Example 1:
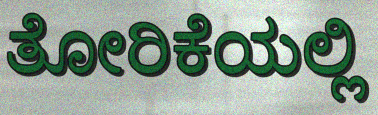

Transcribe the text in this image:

ತೋರಿಕೆಯಲ್ಲಿ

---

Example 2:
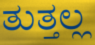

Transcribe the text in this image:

ತುತ್ತಲ್ಲ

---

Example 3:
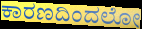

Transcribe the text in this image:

ಕಾರಣದಿಂದಲೋ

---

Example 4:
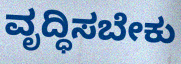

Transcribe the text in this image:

ವೃದ್ಧಿಸಬೇಕು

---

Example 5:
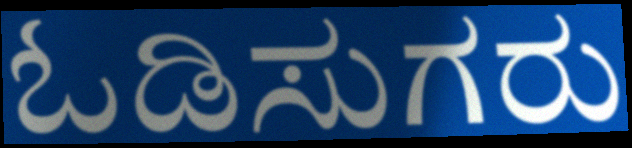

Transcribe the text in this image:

ಓಡಿಸುಗರು